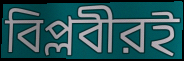
বিপ্লবীরই